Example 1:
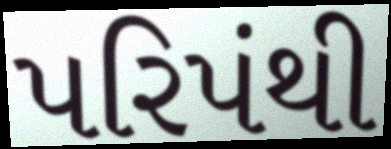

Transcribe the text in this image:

પરિપંથી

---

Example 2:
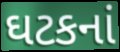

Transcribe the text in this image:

ઘટકનાં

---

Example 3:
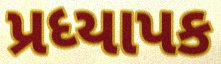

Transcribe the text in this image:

પ્રધ્યાપક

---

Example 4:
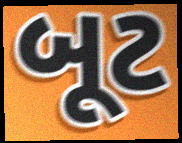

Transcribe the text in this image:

બૂટ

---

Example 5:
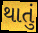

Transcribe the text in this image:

થાતું